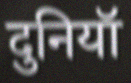
दुनियॉ